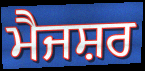
ਮੈਜਸ਼ਰ